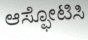
ಆಸ್ಫೋಟಿಸಿ